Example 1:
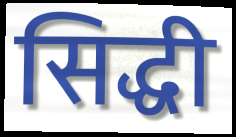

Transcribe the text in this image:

सिद्धी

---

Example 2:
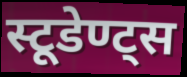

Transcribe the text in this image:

स्टूडेण्ट्स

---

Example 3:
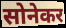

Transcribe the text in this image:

सोनेकर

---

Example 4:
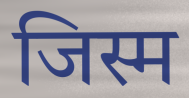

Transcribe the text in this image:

जिस्म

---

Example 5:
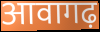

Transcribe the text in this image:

आवागढ़